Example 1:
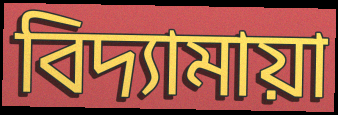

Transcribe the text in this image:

বিদ্যামায়া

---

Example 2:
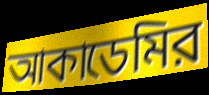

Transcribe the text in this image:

আকাডেমির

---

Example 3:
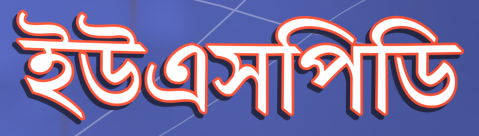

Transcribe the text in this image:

ইউএসপিডি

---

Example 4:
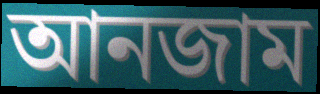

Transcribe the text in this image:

আনজাম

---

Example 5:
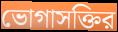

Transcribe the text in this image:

ভোগাসক্তির